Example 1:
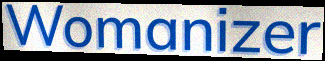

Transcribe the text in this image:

Womanizer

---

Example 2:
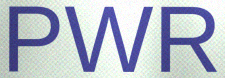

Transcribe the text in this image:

PWR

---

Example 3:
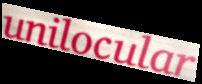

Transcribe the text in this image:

unilocular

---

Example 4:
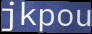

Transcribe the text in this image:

jkpou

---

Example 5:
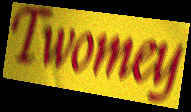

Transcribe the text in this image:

Twomey